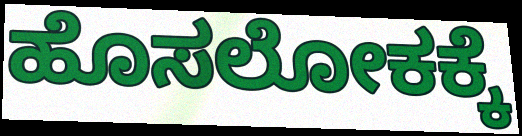
ಹೊಸಲೋಕಕ್ಕೆ